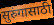
सुरुंगासाठी